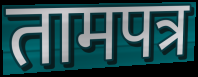
तामपत्र